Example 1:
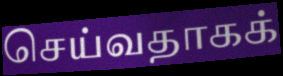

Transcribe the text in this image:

செய்வதாகக்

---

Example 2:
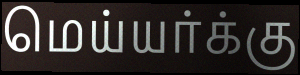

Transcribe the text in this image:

மெய்யர்க்கு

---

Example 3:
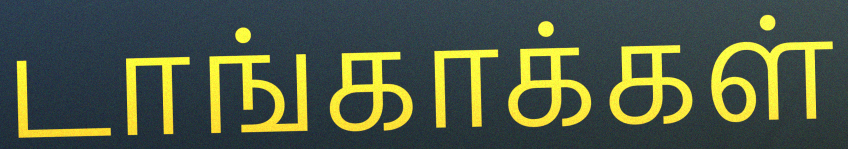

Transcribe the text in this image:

டாங்காக்கள்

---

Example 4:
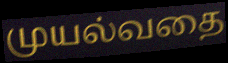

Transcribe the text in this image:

முயல்வதை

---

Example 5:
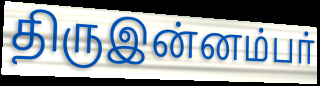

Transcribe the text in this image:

திருஇன்னம்பர்